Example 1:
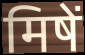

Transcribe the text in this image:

मिषें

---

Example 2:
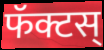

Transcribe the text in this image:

फॅक्टस्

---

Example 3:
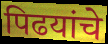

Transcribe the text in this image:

पिढयांचे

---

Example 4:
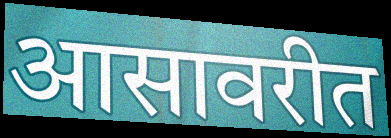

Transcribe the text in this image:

आसावरीत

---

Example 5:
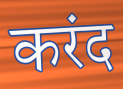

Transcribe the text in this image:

करंद